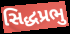
સિદ્ધપ્રભુ